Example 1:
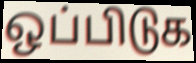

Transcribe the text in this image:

ஒப்பிடுக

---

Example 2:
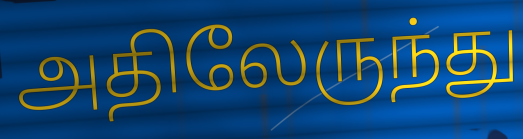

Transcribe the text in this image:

அதிலேருந்து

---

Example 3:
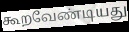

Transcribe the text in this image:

கூறவேண்டியது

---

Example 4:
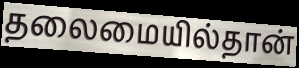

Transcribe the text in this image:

தலைமையில்தான்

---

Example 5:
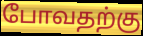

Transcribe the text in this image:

போவதற்கு